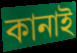
কানাই